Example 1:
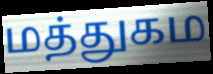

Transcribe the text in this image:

மத்துகம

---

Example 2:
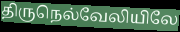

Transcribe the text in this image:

திருநெல்வேலியிலே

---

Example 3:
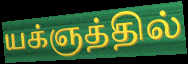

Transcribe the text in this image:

யக்ஞத்தில்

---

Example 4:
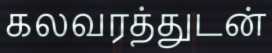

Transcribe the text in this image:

கலவரத்துடன்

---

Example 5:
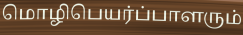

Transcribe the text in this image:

மொழிபெயர்ப்பாளரும்